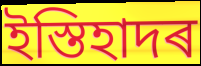
ইস্তিহাদৰ